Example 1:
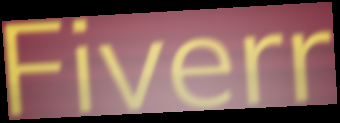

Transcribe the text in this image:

Fiverr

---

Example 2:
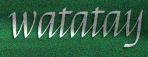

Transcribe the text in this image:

watatay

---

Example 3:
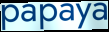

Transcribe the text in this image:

papaya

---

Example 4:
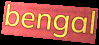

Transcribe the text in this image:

bengal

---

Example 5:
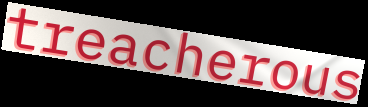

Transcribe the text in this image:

treacherous